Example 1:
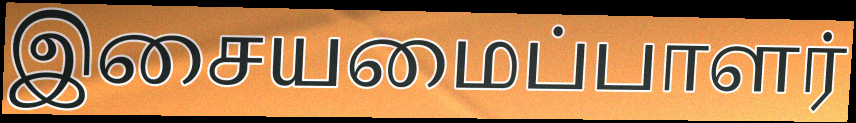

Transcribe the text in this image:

இசையமைப்பாளர்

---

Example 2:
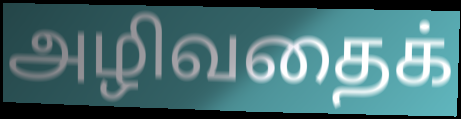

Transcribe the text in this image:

அழிவதைக்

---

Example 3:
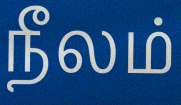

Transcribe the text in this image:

நீலம்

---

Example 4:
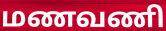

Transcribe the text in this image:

மணவணி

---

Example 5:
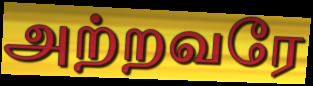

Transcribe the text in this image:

அற்றவரே